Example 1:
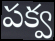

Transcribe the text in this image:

పక్వ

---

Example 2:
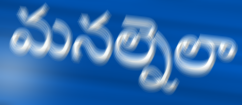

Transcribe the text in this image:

మనల్నెలా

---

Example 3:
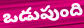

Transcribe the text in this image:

ఒడుపుంది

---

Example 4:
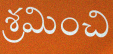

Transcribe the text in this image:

శ్రమించి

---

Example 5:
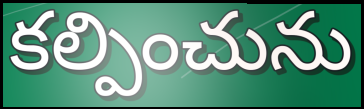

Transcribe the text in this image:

కల్పించును